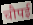
चौपई